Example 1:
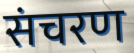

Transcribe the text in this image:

संचरण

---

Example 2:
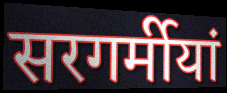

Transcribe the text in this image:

सरगर्मीयां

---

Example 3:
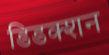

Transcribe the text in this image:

डिडक्शन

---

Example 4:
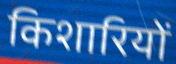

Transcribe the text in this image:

किशारियों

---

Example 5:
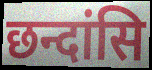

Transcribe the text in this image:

छन्दांसि